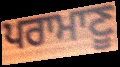
ਪਰਾਮਾਣੂ